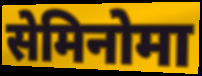
सेमिनोमा